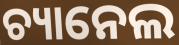
ଚ୍ୟାନେଲ